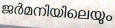
ജർമനിയിലെയും